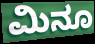
ಮಿನೂ